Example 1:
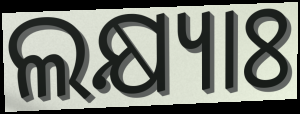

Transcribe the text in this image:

ଲକ୍ଷ୍ୟାଃ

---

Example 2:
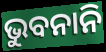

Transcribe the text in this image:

ଭୁବନାନି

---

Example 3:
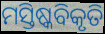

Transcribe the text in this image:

ମସ୍ତିଷ୍କବିକୃତି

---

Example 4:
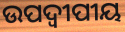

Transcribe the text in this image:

ଉପଦ୍ଵୀପୀୟ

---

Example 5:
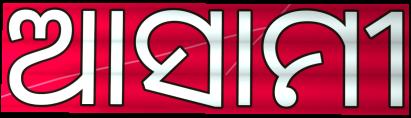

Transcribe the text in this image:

ଆସାମୀ